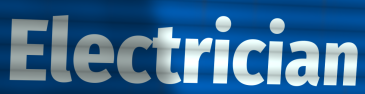
Electrician